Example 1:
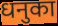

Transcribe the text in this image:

धनुका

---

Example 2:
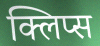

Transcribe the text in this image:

क्लिप्स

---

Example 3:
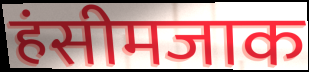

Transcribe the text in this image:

हंसीमजाक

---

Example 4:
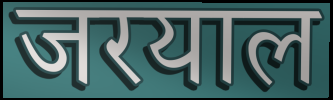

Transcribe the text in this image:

जरयाल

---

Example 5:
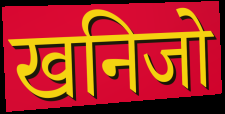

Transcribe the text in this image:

खनिजो